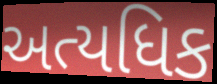
અત્યધિક